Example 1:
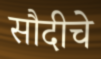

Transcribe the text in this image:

सौदीचे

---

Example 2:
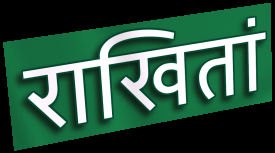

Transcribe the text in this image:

राखितां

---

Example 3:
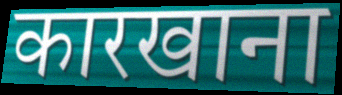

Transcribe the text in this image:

कारखाना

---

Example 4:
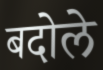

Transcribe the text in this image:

बदोले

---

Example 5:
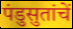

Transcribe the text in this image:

पंडुसुतांचें